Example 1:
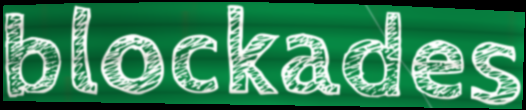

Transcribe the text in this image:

blockades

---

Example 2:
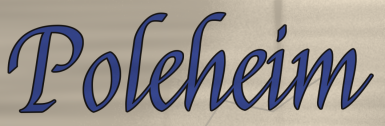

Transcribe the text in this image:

Poleheim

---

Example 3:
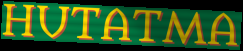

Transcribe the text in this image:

HUTATMA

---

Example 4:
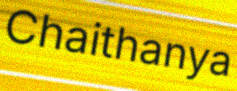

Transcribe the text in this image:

Chaithanya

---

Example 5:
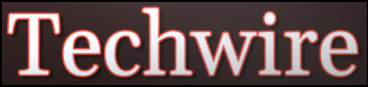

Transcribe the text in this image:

Techwire